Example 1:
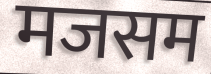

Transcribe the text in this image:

मजसम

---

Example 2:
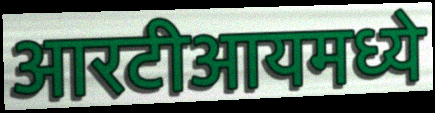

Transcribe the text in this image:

आरटीआयमध्ये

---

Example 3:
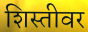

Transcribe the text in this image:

शिस्तीवर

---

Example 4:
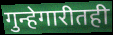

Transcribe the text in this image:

गुन्हेगारीतही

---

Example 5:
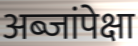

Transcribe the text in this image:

अब्जांपेक्षा